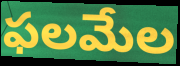
ఫలమేల